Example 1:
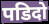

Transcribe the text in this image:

पडिदो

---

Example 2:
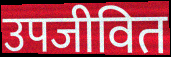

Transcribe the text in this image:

उपजीवित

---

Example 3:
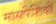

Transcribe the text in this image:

मांसपेशियों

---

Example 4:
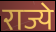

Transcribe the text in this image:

राज्ये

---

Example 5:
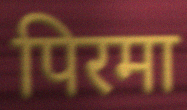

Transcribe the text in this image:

पिरमा